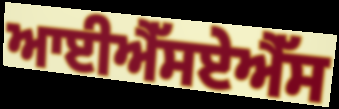
ਆਈਐੱਸਏਐੱਸ